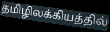
தமிழிலக்கியத்தில்